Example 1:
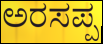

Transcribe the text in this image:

ಅರಸಪ್ಪ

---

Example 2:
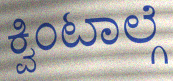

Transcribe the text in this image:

ಕ್ವಿಂಟಾಲ್ಗೆ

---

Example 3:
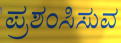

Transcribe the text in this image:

ಪ್ರಶಂಸಿಸುವ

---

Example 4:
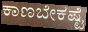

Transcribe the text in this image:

ಕಾಣಬೇಕಷ್ಟೆ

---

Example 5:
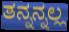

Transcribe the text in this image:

ತನ್ನನ್ನಲ್ಲ